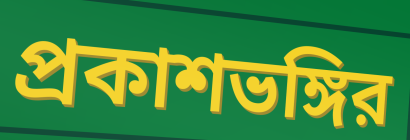
প্রকাশভঙ্গির